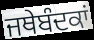
ਜਥੇਬੰਦਕਾਂ